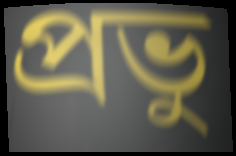
প্রভু